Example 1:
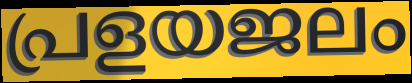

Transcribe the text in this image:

പ്രളയജലം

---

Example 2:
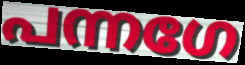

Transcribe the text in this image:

പന്നഗേ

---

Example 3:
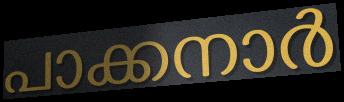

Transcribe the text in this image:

പാക്കനാർ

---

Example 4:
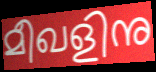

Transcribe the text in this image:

മീഖളിനു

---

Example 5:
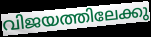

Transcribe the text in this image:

വിജയത്തിലേക്കു